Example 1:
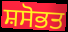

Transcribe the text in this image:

ਸ਼ਸੋਭਤ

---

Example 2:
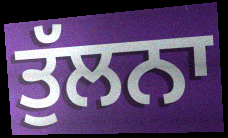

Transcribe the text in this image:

ਤੁੱਲਨਾ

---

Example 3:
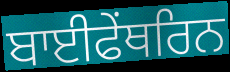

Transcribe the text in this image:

ਬਾਈਫੇਂਥਰਿਨ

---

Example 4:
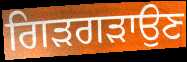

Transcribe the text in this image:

ਗਿੜਗੜਾਉਣ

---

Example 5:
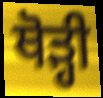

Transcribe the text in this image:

ਥੋਡ਼੍ਹੀ